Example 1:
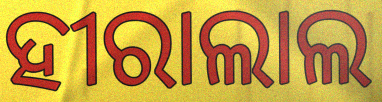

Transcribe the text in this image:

ହୀରାଲାଲ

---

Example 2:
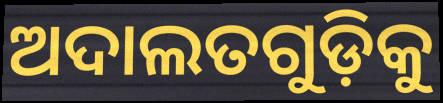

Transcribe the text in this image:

ଅଦାଲତଗୁଡ଼ିକୁ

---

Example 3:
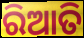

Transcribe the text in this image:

ରିଆତି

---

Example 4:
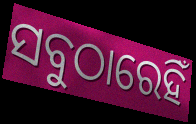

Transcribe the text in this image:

ସବୁଠାରେହିଁ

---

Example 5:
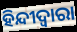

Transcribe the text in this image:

ହିନ୍ଦୀଦ୍ଵାରା